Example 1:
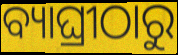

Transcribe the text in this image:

ବ୍ୟାଘ୍ରୀଠାରୁ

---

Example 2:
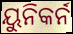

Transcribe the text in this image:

ୟୁନିକର୍ନ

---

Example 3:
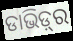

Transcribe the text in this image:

ଡାଭିଡ଼୍‍ର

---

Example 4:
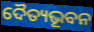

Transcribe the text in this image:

ଦୈତ୍ୟଭୂବନ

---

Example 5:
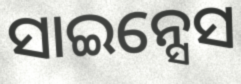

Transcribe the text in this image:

ସାଇନ୍ସେସ